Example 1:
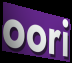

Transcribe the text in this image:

oori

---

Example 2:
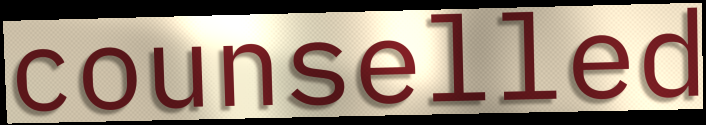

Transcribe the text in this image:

counselled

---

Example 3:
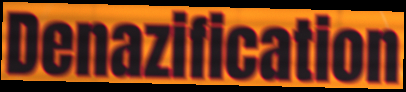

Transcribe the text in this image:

Denazification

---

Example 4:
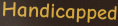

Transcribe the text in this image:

Handicapped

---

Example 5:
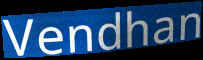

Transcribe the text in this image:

Vendhan